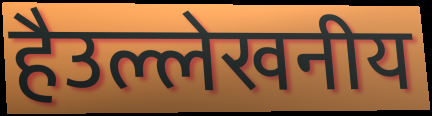
हैउल्लेखनीय